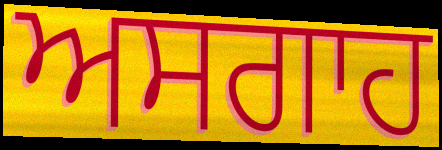
ਅਸਗਾਹ